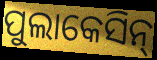
ପୁଲାକେସିନ୍